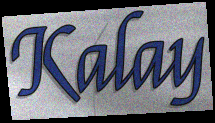
Kalay